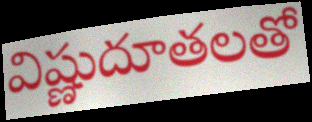
విష్ణుదూతలతో